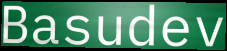
Basudev